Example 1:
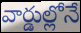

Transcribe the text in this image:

వార్డుల్లోనే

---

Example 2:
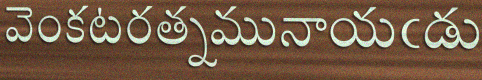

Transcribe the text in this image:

వెంకటరత్నమునాయఁడు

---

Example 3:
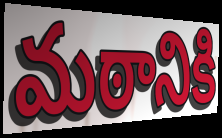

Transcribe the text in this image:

మఠానికి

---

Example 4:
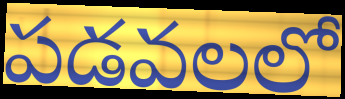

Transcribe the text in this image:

పడవలలో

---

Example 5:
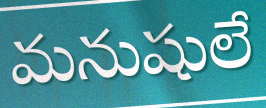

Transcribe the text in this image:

మనుషులే